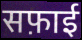
सफ़ाई